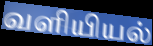
வளியியல்